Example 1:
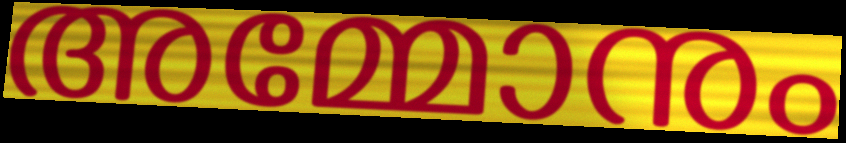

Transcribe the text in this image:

അമ്മോനും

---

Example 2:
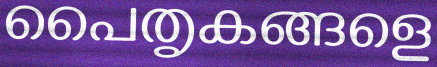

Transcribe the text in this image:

പൈതൃകങ്ങളെ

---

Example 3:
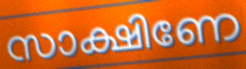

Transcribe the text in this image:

സാക്ഷിണേ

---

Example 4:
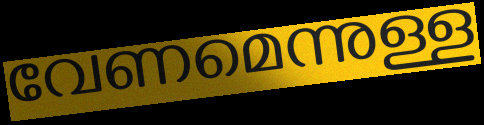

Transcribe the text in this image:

വേണമെന്നുള്ള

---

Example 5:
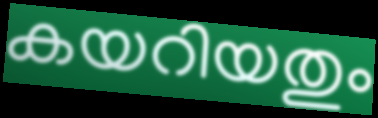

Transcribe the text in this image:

കയറിയതും